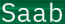
Saab